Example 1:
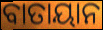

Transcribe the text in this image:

ବାତାୟାନ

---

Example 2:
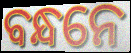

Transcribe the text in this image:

ବନ୍ଧନେ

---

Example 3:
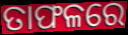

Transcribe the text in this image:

ତାଫଳରେ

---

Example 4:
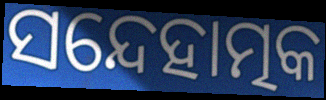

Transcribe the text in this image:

ସନ୍ଦେହାତ୍ମକ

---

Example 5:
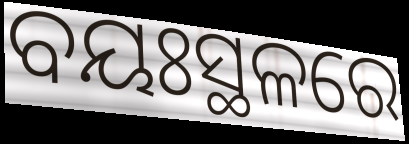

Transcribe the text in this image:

ବୟଃସ୍ଥଳରେ